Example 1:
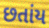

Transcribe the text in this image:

છતાંય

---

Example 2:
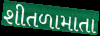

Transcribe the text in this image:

શીતળામાતા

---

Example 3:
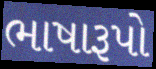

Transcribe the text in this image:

ભાષારૂપો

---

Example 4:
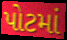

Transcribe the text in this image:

પોટમાં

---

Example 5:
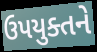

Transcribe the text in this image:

ઉપયુક્તને